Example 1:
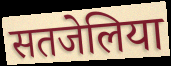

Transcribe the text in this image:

सतजेलिया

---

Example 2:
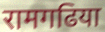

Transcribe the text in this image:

रामगढिया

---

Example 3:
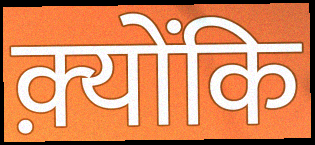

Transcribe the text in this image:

क़्योंकि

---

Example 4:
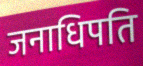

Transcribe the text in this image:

जनाधिपति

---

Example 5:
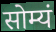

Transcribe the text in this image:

सोम्यं